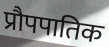
प्रौपपातिक